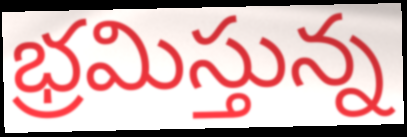
భ్రమిస్తున్న